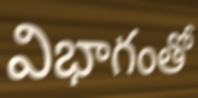
విభాగంతో